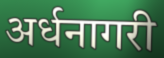
अर्धनागरी